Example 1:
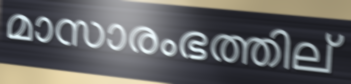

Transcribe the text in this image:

മാസാരംഭത്തില്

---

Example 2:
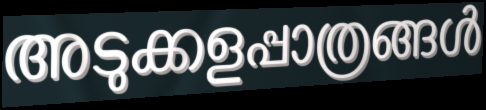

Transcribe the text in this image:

അടുക്കളപ്പാത്രങ്ങൾ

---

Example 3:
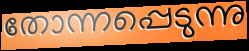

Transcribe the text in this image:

തോന്നപ്പെടുന്നു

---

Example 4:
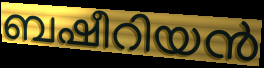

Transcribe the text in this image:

ബഷീറിയൻ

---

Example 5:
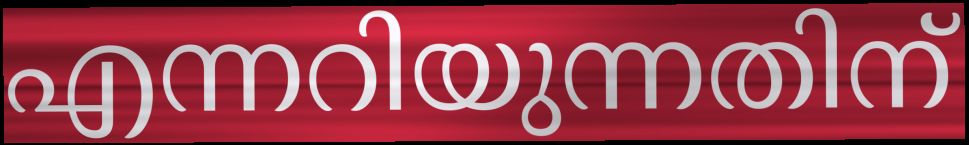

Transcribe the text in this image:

എന്നറിയുന്നതിന്